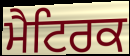
ਮੈਟਿਰਕ